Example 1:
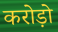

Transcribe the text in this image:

करोड़ो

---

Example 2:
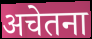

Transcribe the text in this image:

अचेतना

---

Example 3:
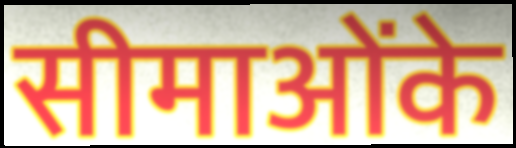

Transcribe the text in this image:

सीमाओंके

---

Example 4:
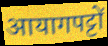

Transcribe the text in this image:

आयागपट्टों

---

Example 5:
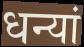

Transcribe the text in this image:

धन्यां